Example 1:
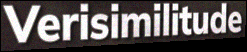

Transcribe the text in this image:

Verisimilitude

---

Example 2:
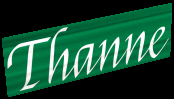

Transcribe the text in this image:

Thanne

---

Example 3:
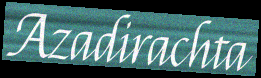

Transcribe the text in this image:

Azadirachta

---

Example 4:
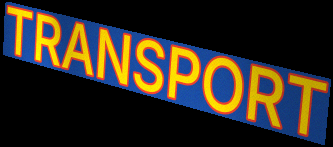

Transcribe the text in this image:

TRANSPORT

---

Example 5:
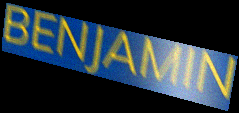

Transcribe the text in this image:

BENJAMIN